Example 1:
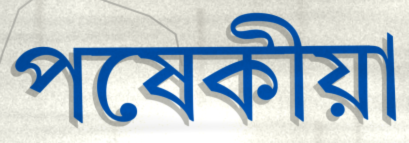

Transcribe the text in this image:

পষেকীয়া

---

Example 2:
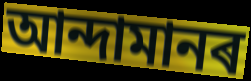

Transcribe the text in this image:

আন্দামানৰ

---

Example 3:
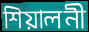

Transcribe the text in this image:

শিয়ালনী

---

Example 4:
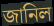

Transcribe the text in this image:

জানিল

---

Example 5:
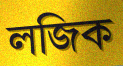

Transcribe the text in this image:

লজিক